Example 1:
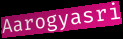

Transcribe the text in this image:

Aarogyasri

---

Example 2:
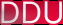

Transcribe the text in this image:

DDU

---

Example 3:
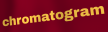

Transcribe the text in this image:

chromatogram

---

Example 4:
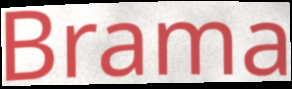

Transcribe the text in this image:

Brama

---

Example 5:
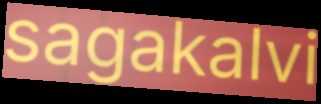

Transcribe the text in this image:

sagakalvi